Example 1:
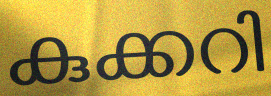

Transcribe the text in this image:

കുക്കറി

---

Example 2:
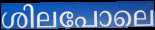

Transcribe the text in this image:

ശിലപോലെ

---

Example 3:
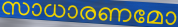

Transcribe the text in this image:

സാധാരണമോ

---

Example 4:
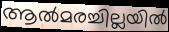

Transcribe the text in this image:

ആൽമരച്ചില്ലയിൽ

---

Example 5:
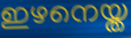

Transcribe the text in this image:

ഇഴനെയ്ത